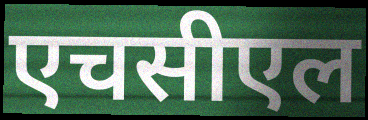
एचसीएल